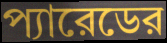
প্যারেডের